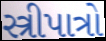
સ્ત્રીપાત્રો